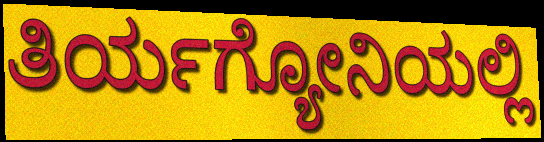
ತಿರ್ಯಗ್ಯೋನಿಯಲ್ಲಿ